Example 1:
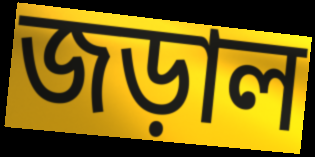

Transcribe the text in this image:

জড়াল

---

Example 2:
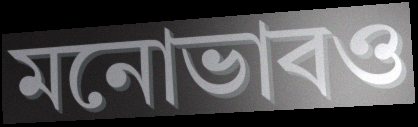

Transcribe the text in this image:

মনোভাবও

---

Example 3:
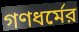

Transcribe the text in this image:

গণধর্মের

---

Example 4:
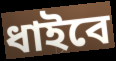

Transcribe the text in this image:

ধাইবে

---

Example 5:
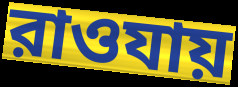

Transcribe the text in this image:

রাওযায়